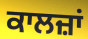
ਕਾਲਜ਼ਾਂ